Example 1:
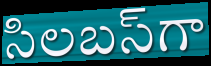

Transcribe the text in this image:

సిలబస్‌గా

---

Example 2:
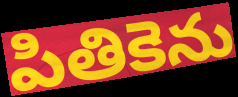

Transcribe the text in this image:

పితికెను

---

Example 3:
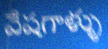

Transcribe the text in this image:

వేషగాళ్ళు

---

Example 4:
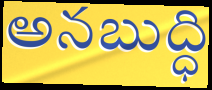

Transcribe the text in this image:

అనబుద్ధి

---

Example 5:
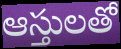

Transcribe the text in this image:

ఆస్తులతో